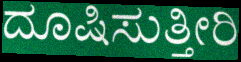
ದೂಷಿಸುತ್ತೀರಿ